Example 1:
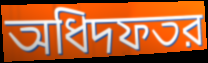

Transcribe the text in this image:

অধিদফতর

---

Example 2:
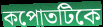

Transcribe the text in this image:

কপোতটিকে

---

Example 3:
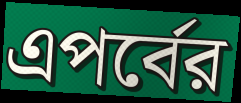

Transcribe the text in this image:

এপর্বের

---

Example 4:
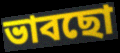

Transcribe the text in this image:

ভাবছো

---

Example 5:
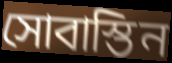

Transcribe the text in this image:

সোবাস্তিন